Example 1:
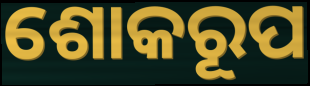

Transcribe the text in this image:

ଶୋକରୂପ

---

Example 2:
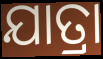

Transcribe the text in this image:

ଯାତ୍ରା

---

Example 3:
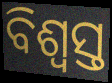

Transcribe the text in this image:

ବିଶ୍ୱସ୍ତ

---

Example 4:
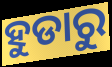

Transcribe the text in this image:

ହୁଡାରୁ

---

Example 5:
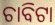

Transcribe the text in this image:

ଚାବିଟା